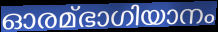
ഓരമ്ഭാഗിയാനം